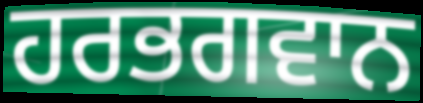
ਹਰਭਗਵਾਨ